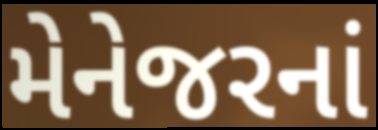
મેનેજરનાં